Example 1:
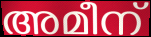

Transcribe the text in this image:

അമീന്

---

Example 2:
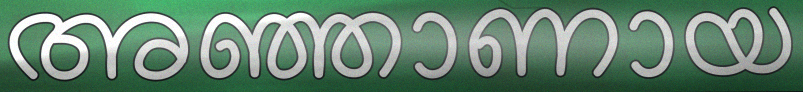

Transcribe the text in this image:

അഞ്ഞാണായ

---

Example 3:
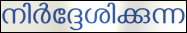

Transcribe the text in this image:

നിർദ്ദേശിക്കുന്ന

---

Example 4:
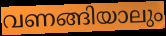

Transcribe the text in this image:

വണങ്ങിയാലും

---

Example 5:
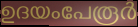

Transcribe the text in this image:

ഉദയംപേരൂർ